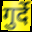
गुर्दे